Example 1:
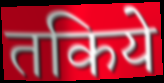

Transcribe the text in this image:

तकिये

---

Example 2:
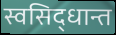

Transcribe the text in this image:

स्वसिद्धान्त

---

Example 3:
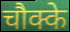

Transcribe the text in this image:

चौक्के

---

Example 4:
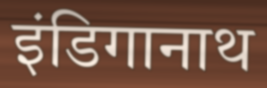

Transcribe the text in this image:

इंडिगानाथ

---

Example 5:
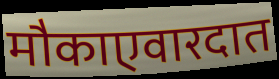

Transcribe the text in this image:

मौकाएवारदात